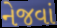
નેજવાં